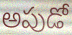
అపుడో